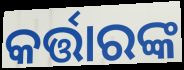
କର୍ତ୍ତାରଙ୍କ